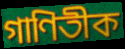
গাণিতীক